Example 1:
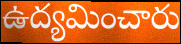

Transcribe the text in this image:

ఉద్యమించారు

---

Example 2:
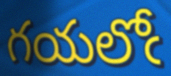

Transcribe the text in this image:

గయలోఁ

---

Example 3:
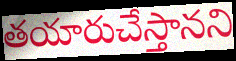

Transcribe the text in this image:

తయారుచేస్తానని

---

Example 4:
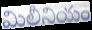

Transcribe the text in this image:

మిలీనియం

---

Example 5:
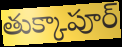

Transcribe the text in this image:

తుక్కాపూర్